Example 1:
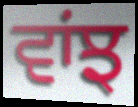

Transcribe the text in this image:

ਵਾਂਝ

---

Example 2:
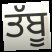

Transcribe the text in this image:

ਤੱਬੂ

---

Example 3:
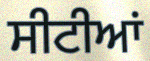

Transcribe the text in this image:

ਸੀਟੀਆਂ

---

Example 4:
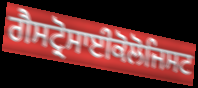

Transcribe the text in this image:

ਗੈਸਟ੍ਰੋਸਾਈਕੋਲੋਜਿਸਟ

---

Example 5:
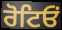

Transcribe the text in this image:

ਰੋਟਿਓਂ